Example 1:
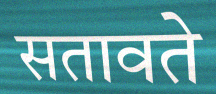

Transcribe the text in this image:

सतावते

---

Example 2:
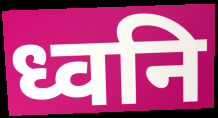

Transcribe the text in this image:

ध्वनि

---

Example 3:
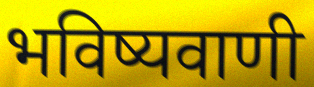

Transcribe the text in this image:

भविष्यवाणी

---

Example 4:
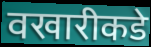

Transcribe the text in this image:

वखारीकडे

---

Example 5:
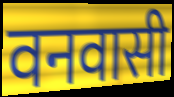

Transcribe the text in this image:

वनवासी